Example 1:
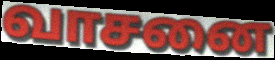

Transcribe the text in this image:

வாசனை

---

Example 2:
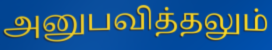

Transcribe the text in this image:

அனுபவித்தலும்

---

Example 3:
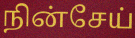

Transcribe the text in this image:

நின்சேய்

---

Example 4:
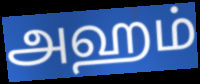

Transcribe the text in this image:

அஹம்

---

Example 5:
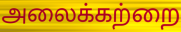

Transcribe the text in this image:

அலைக்கற்றை